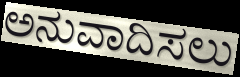
ಅನುವಾದಿಸಲು